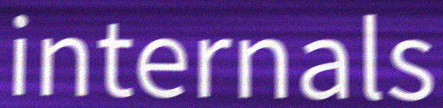
internals